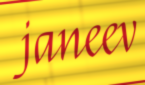
janeev